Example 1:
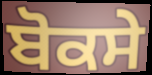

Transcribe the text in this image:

ਬੋਕਸੇ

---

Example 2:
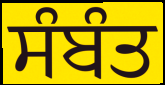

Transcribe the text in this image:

ਸੰਬੰਤ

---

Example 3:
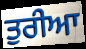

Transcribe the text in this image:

ਤੁਰੀਆ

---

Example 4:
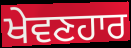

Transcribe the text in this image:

ਖੇਵਣਹਾਰ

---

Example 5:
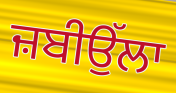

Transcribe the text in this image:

ਜ਼ਬੀਉੱਲਾ